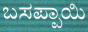
ಬಸಪ್ಪಾಯಿ